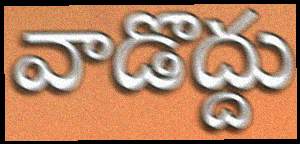
వాడొద్దు